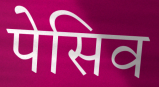
पेसिव